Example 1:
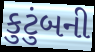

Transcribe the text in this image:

કુટુંબની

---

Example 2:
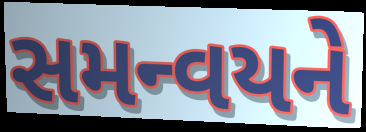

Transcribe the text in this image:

સમન્વયને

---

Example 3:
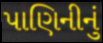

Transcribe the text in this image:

પાણિનીનું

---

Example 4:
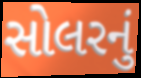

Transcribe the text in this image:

સોલરનું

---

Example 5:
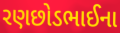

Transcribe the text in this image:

રણછોડભાઈના